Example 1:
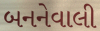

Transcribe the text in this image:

બનનેવાલી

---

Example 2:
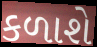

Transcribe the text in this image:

કળાશે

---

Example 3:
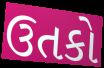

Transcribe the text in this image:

ઉતકો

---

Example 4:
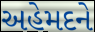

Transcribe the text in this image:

અહેમદને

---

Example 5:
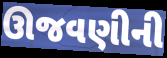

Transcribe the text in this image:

ઊજવણીની